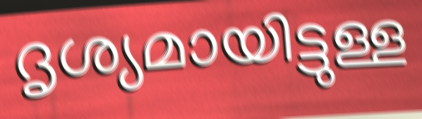
ദൃശ്യമായിട്ടുള്ള